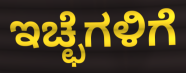
ಇಚ್ಛೆಗಳಿಗೆ